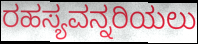
ರಹಸ್ಯವನ್ನರಿಯಲು